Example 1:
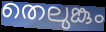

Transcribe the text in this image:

തെലുങ്കും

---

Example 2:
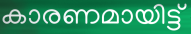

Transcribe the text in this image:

കാരണമായിട്ട്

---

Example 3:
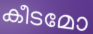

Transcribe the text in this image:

കീടമോ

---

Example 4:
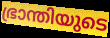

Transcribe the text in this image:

ഭ്രാന്തിയുടെ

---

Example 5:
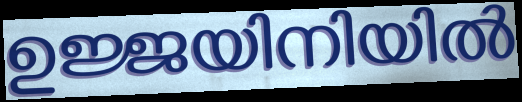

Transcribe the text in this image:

ഉജ്ജയിനിയിൽ